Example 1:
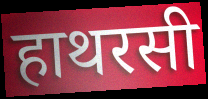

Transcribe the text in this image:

हाथरसी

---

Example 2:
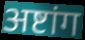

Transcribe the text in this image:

अष्टांग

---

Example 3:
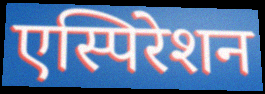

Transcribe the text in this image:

एस्पिरेशन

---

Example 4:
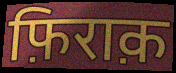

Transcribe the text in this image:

फ़िराक़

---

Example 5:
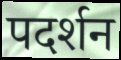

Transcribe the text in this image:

पदर्शन